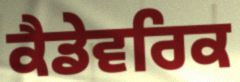
ਕੈਡੇਵਰਿਕ